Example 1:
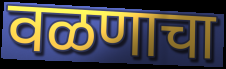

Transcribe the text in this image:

वळणाचा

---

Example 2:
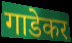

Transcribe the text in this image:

गाडेकर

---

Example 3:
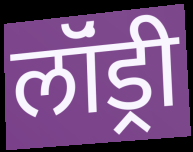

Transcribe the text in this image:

लॉंड्री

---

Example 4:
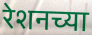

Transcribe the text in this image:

रेशनच्या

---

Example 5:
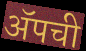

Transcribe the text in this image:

ॲपची